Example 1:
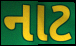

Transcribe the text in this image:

નાટ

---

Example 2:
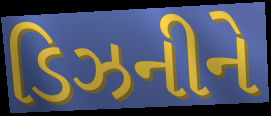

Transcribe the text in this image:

ડિઝનીને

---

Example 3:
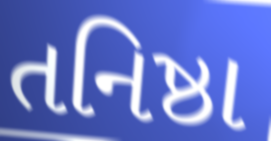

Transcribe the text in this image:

તનિષ્ઠા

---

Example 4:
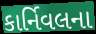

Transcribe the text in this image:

કાર્નિવલના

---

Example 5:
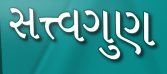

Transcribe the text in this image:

સત્ત્વગુણ